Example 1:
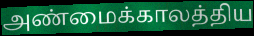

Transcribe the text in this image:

அண்மைக்காலத்திய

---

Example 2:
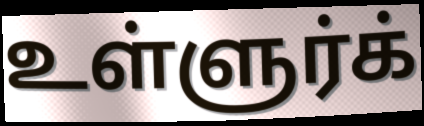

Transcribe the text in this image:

உள்ளுர்க்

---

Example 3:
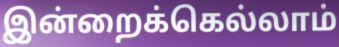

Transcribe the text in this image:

இன்றைக்கெல்லாம்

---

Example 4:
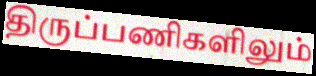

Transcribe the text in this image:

திருப்பணிகளிலும்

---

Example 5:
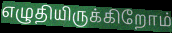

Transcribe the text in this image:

எழுதியிருக்கிறோம்